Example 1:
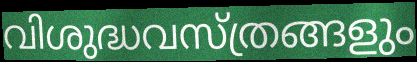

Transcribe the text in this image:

വിശുദ്ധവസ്ത്രങ്ങളും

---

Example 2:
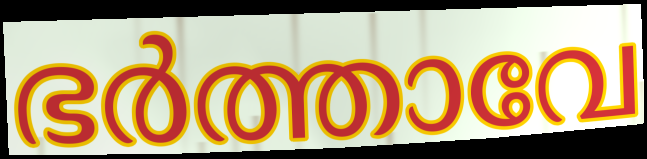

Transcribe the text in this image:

ഭർത്താവേ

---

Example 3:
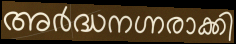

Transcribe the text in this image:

അർദ്ധനഗ്നരാക്കി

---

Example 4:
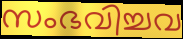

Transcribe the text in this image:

സംഭവിച്ചവ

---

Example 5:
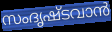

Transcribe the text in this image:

സംദൃഷ്ടവാൻ